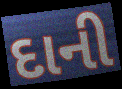
દાની